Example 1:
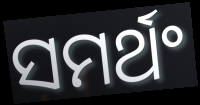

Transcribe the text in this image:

ସମର୍ଥଂ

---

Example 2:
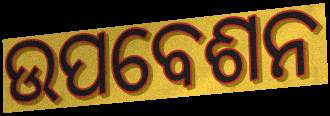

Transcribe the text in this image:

ଉପବେଶନ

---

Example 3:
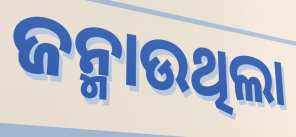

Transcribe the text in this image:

ଜନ୍ମାଉଥିଲା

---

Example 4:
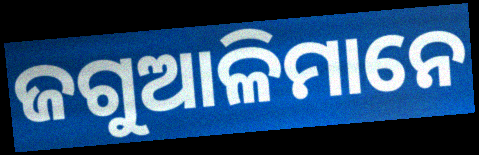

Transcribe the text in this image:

ଜଗୁଆଳିମାନେ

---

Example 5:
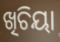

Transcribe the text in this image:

ଖିଚିୟା